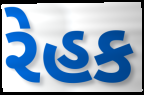
રેહક